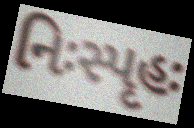
નિઃસ્પૃહઃ